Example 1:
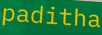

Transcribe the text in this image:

paditha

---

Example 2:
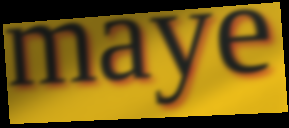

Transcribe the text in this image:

maye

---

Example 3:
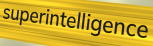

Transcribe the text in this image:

superintelligence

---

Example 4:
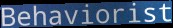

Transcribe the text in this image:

Behaviorist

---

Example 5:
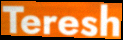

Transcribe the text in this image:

Teresh